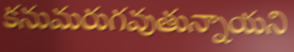
కనుమరుగవుతున్నాయని